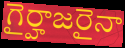
గైర్హాజరైనా